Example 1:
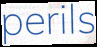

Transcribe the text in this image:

perils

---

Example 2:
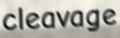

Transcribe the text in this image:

cleavage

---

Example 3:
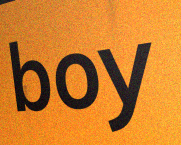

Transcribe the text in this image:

boy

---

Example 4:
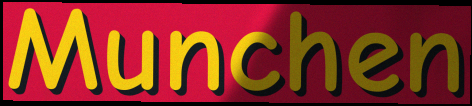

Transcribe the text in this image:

Munchen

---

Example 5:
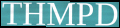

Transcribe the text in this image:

THMPD